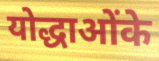
योद्धाओंके